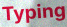
Typing